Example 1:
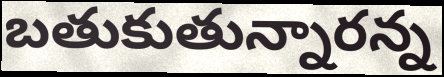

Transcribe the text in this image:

బతుకుతున్నారన్న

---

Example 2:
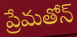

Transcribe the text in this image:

ప్రేమతోన్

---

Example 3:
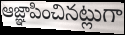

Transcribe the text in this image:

ఆజ్ఞాపించినట్లుగా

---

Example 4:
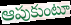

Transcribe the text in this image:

ఆపుకుంటూ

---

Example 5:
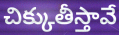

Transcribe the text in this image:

చిక్కుతీస్తావే